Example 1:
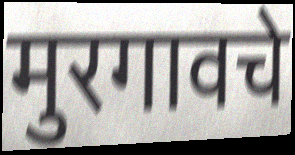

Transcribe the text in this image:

मुरगावचे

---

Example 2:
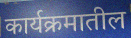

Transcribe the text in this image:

कार्यक्रमातील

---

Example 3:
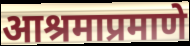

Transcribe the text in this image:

आश्रमाप्रमाणे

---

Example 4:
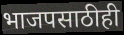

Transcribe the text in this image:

भाजपसाठीही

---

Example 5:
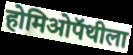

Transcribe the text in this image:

होमिओपॅथीला